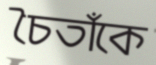
চৈতাঁকে